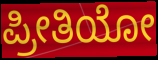
ಪ್ರೀತಿಯೋ